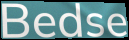
Bedse